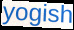
yogish